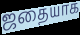
ஜதையாக